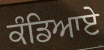
ਕੰਡਿਆਏ